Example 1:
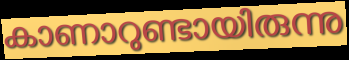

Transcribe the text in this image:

കാണാറുണ്ടായിരുന്നു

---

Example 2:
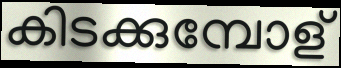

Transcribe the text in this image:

കിടക്കുമ്പോള്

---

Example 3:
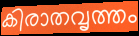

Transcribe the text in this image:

കിരാതവൃത്തം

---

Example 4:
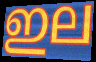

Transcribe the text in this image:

ഇല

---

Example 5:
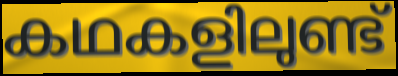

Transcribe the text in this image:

കഥകളിലുണ്ട്